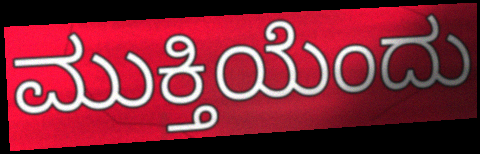
ಮುಕ್ತಿಯೆಂದು